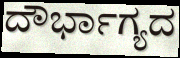
ದೌರ್ಭಾಗ್ಯದ